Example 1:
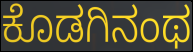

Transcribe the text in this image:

ಕೊಡಗಿನಂಥ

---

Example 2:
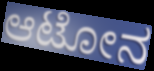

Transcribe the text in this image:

ಆಟೋನ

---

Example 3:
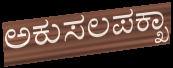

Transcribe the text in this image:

ಅಕುಸಲಪಕ್ಖಾ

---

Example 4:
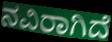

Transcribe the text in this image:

ನವಿರಾಗಿದೆ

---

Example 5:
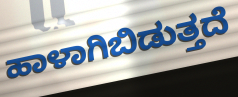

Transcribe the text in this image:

ಹಾಳಾಗಿಬಿಡುತ್ತದೆ